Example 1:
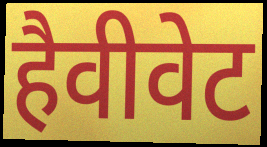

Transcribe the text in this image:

हैवीवेट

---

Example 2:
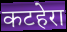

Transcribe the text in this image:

कटहेरा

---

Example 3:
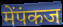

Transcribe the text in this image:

मेंपंकज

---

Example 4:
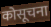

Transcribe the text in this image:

कोसूचना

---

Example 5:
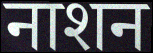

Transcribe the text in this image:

नाशन